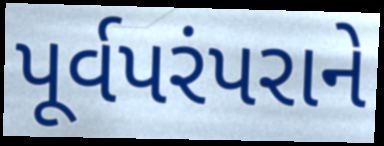
પૂર્વપરંપરાને